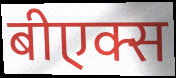
बीएक्स